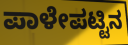
ಪಾಳೇಪಟ್ಟಿನ